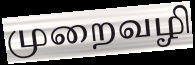
முறைவழி